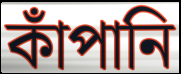
কাঁপানি